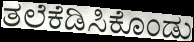
ತಲೆಕೆಡಿಸಿಕೊಂಡು